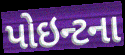
પોઇન્ટના